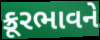
ક્રૂરભાવને